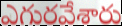
ఎగురవేశారు